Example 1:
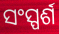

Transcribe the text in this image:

ସଂସ୍ପର୍ଶ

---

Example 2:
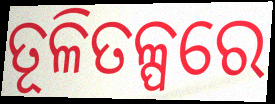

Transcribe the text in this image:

ତୂଳିତଳ୍ପରେ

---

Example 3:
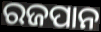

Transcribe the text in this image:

ରଜପାନ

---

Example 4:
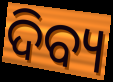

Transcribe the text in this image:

ଦିବ୍ୟ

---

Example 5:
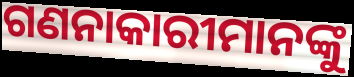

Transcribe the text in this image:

ଗଣନାକାରୀମାନଙ୍କୁ